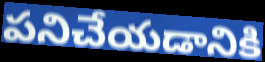
పనిచేయడానికి